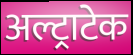
अल्ट्राटेक